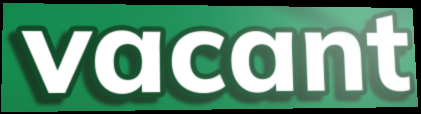
vacant